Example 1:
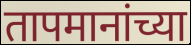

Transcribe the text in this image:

तापमानांच्या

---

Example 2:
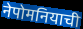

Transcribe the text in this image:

नेपोमनियाची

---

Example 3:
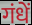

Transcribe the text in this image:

गंधें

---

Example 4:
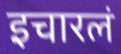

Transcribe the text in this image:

इचारलं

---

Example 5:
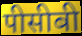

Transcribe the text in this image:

पीसीबी